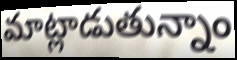
మాట్లాడుతున్నాం